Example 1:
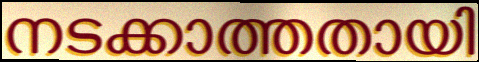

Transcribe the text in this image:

നടക്കാത്തതായി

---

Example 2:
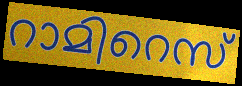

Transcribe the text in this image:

റാമിറെസ്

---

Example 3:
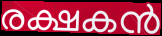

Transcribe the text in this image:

രക്ഷകൻ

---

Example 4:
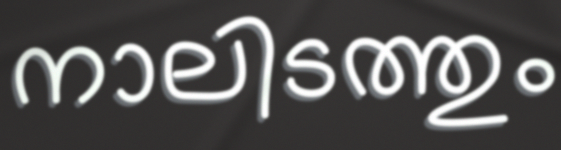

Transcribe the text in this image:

നാലിടത്തും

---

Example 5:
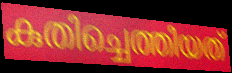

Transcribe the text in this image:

കുതിച്ചെത്തിയത്